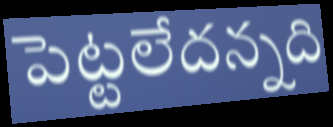
పెట్టలేదన్నది